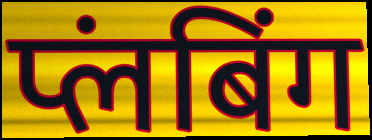
प्लंबिंग